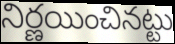
నిర్ణయించినట్టు